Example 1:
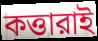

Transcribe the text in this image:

কত্তারাই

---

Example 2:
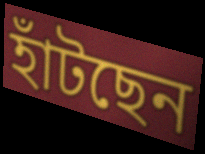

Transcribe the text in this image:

হাঁটছেন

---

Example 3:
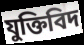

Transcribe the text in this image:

যুক্তিবিদ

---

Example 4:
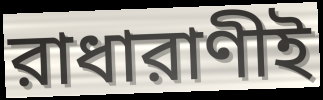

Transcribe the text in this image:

রাধারাণীই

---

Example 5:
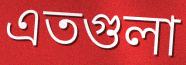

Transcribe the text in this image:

এতগুলা